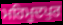
ਮਹਿਮੂਦਪੁਰ